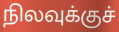
நிலவுக்குச்